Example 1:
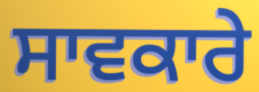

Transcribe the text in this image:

ਸਾਵਕਾਰੇ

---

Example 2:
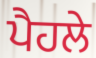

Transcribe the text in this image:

ਪੈਹਲੇ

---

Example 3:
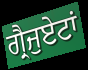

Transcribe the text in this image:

ਗ੍ਰੈਜੁਏਟਾਂ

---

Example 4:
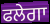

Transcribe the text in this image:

ਫਲੇਗਾ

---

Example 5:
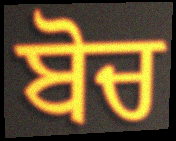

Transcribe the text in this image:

ਬੋਚ